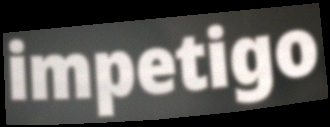
impetigo